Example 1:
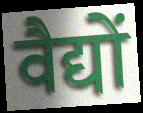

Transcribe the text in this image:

वैद्यों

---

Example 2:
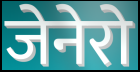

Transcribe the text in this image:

जेनेरो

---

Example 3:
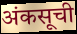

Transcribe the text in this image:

अंकसूची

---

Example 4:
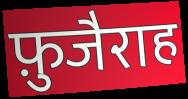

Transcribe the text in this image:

फ़ुजैराह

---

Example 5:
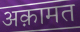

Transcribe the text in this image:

अक़ामत